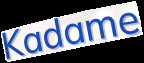
Kadame